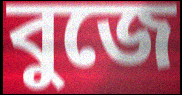
বুজে